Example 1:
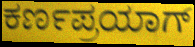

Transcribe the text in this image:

ಕರ್ಣಪ್ರಯಾಗ್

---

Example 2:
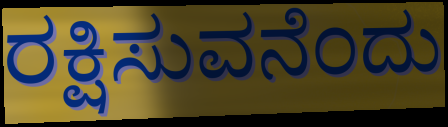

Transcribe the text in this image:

ರಕ್ಷಿಸುವನೆಂದು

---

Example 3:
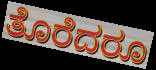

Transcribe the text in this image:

ತೊರೆದರೂ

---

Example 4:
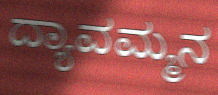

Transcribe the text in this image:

ದ್ಯಾವಮ್ಮನ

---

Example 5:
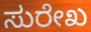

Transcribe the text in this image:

ಸುರೇಖ